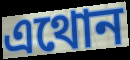
এথোন